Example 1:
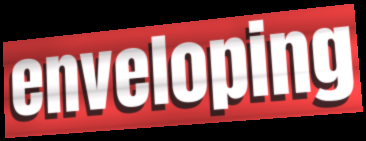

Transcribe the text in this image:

enveloping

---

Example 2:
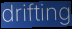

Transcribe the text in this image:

drifting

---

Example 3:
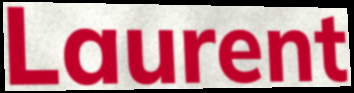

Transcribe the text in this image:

Laurent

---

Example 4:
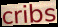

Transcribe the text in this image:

cribs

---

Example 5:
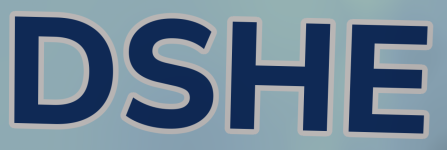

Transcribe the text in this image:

DSHE